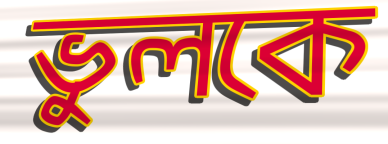
ভুলকে